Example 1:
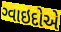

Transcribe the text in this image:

ગ્વાઇદોએ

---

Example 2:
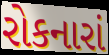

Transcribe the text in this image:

રોકનારાં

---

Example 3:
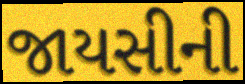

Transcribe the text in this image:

જાયસીની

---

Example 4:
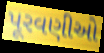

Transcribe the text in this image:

પૂરવણીઓ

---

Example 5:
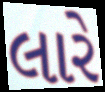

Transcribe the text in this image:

લારે